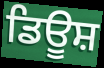
ਡਿਊਸ਼